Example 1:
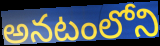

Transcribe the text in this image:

అనటంలోని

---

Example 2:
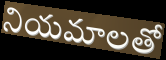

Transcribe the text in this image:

నియమాలతో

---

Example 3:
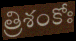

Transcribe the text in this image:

త్రిశంకోః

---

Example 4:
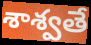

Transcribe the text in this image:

శాశ్వతే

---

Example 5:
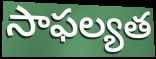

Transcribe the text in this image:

సాఫల్యత